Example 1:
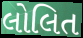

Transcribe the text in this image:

લોલિત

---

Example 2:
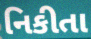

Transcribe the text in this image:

નિકીતા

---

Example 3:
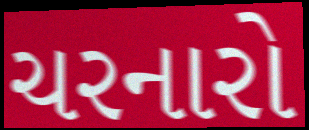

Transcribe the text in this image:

ચરનારો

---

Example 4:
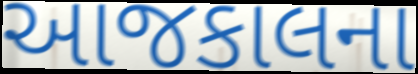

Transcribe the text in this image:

આજકાલના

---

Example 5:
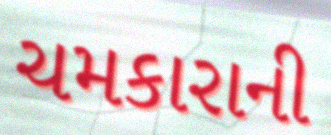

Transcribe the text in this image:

ચમકારાની